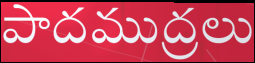
పాదముద్రలు